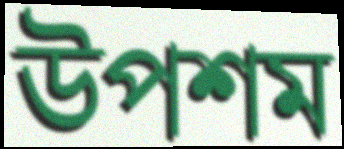
উপশম